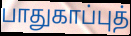
பாதுகாப்புத்